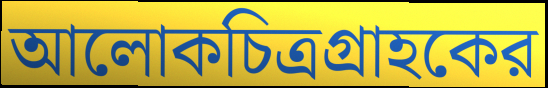
আলোকচিত্রগ্রাহকের